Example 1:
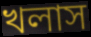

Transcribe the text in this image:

খলাস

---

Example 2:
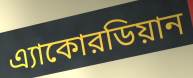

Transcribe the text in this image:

এ্যাকোরডিয়ান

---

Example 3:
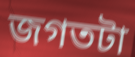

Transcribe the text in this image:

জগতটা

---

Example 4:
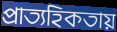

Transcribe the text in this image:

প্রাত্যহিকতায়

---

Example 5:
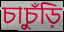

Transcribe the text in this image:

চাচুঁড়ি